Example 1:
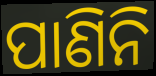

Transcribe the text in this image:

ପାଣିନି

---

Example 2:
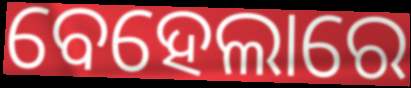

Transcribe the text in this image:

ବେହେଲାରେ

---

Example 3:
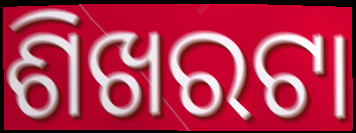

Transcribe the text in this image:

ଶିଖରଟା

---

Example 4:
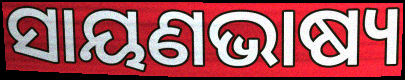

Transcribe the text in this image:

ସାୟଣଭାଷ୍ୟ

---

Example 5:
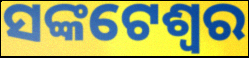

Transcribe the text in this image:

ସଙ୍କଟେଶ୍ୱର